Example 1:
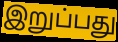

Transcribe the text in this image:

இறுப்பது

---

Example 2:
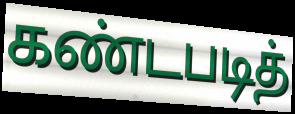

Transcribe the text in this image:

கண்டபடித்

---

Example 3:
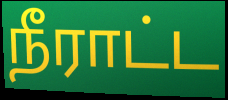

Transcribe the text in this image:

நீராட்ட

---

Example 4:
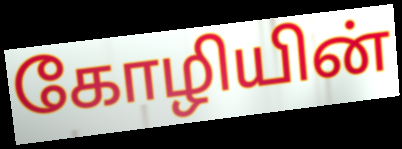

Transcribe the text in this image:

கோழியின்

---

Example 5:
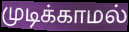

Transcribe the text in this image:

முடிக்காமல்